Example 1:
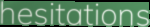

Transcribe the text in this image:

hesitations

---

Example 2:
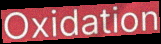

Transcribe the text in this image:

Oxidation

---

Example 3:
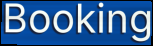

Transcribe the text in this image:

Booking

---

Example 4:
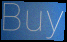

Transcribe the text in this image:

Buy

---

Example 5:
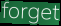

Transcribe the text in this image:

forget